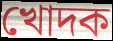
খোদক